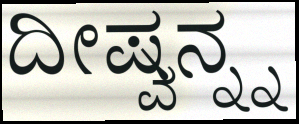
ದೀಷ್ವನ್ನ್ನ